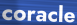
coracle